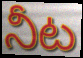
నీట